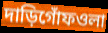
দাড়িগোঁফওলা